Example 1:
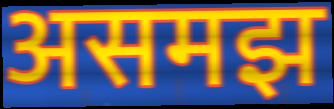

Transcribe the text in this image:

असमझ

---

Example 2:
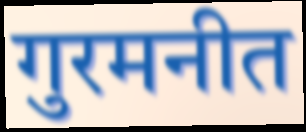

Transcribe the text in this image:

गुरमनीत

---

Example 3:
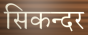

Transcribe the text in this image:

सिकन्दर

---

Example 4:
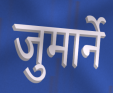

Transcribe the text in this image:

जुमार्ने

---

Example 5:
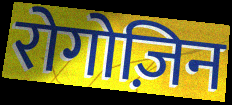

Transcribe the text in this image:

रोगोज़िन